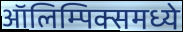
ऑलिम्पिक्समध्ये